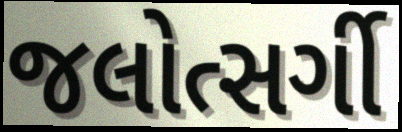
જલોત્સર્ગી